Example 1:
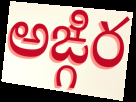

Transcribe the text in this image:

అఙ్గిర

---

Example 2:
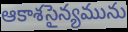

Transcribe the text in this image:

ఆకాశసైన్యమును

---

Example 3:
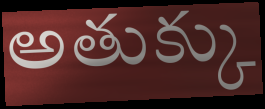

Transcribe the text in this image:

అతుక్కు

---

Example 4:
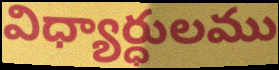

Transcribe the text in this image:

విధ్యార్ధులము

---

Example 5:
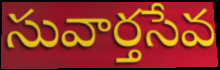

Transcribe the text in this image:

సువార్తసేవ